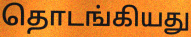
தொடங்கியது